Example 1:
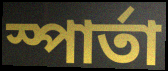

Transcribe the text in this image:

স্পার্তা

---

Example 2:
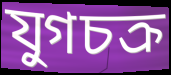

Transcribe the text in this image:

যুগচক্র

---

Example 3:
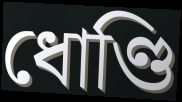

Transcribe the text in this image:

ধোণ্ডি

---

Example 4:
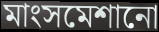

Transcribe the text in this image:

মাংসমেশানো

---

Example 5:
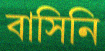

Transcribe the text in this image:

বাসিনি